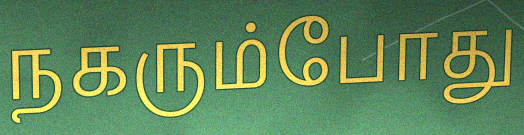
நகரும்போது